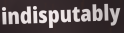
indisputably